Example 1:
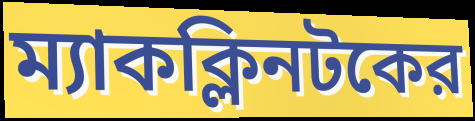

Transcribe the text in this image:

ম্যাকক্লিনটকের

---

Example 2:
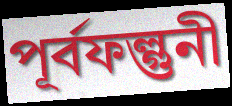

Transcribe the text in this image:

পূর্বফল্গুনী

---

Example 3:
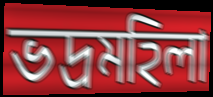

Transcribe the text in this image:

ভদ্রমহিলা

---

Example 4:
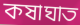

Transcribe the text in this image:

কষাঘাত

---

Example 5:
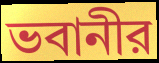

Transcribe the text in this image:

ভবানীর